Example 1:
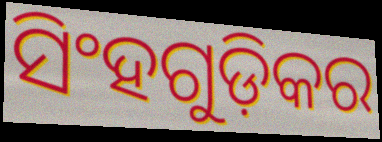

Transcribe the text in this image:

ସିଂହଗୁଡ଼ିକର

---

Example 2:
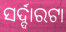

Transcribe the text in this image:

ସର୍ଦ୍ଦାରଟା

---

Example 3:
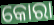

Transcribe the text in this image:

କୋରା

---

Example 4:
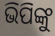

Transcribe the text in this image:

ଭିପିଙ୍କୁ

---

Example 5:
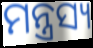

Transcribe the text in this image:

ମନ୍ତ୍ରସ୍ୟ